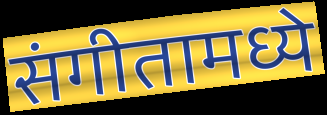
संगीतामध्ये